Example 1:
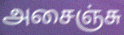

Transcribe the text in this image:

அசைஞ்சு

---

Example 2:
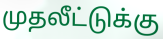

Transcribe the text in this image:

முதலீட்டுக்கு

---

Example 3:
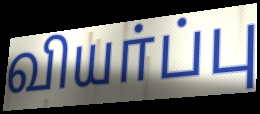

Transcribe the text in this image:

வியர்ப்பு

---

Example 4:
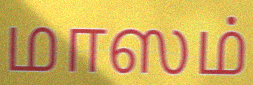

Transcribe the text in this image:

மாஸம்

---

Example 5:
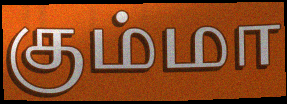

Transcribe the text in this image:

கும்மா